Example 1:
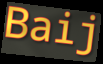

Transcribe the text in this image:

Baij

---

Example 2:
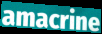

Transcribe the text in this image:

amacrine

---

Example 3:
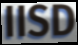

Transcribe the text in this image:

IISD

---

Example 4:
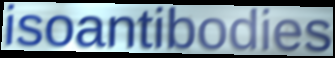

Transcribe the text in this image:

isoantibodies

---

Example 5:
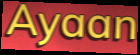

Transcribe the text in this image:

Ayaan